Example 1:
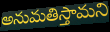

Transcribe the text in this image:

అనుమతిస్తామని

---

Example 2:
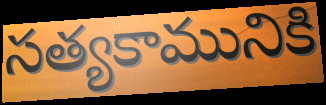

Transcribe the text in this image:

సత్యకామునికి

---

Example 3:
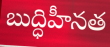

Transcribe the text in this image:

బుద్ధిహీనత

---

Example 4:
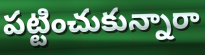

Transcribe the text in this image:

పట్టించుకున్నారా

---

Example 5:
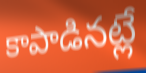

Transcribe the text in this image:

కాపాడినట్లే